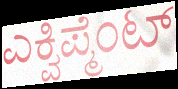
ಎಕ್ವಿಪ್ಮೆಂಟ್